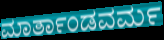
ಮಾರ್ತಾಂಡವರ್ಮ